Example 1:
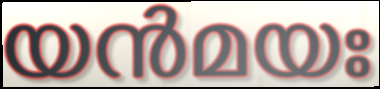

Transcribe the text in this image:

യൻമയഃ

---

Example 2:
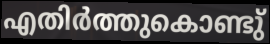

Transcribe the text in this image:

എതിർത്തുകൊണ്ടു്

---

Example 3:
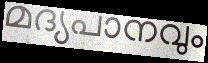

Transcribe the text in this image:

മദ്യപാനവും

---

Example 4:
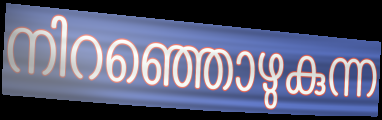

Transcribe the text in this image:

നിറഞ്ഞൊഴുകുന്ന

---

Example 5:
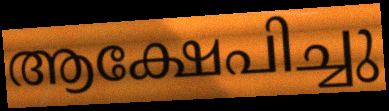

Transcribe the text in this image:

ആക്ഷേപിച്ചു